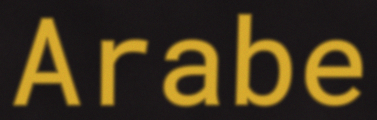
Arabe